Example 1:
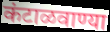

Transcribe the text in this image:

कंटाळवाण्या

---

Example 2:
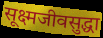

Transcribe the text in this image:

सूक्ष्मजीवसुद्धा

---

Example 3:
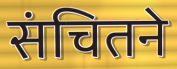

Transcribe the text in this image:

संचितने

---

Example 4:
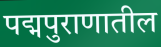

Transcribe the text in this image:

पद्मपुराणातील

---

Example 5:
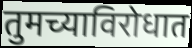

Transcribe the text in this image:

तुमच्याविरोधात